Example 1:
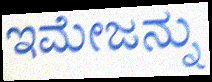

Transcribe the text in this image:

ಇಮೇಜನ್ನು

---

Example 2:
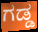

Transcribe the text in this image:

ಗಡ್ಡ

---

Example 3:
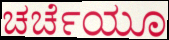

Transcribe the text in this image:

ಚರ್ಚೆಯೂ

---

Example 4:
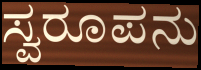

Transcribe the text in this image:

ಸ್ವರೂಪನು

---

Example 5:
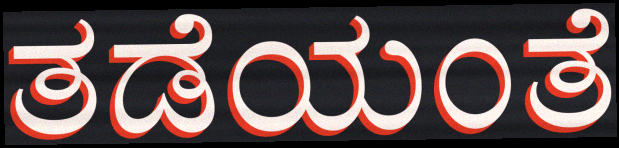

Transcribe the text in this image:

ತಡೆಯಂತೆ